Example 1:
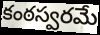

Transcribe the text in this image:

కంఠస్వరమే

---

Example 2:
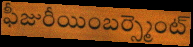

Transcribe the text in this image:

ఫీజురీయింబర్స్మెంట్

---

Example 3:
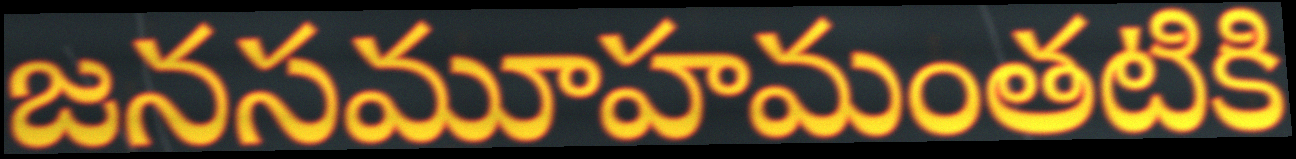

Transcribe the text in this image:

జనసమూహమంతటికి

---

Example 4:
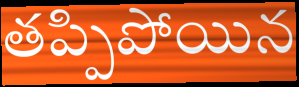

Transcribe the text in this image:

తప్పిపోయిన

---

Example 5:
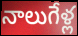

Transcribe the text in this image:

నాలుగేళ్ల